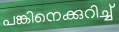
പങ്കിനെക്കുറിച്ച്